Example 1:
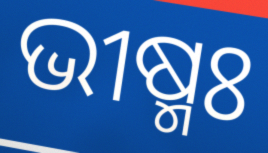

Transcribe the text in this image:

ଭୀଷ୍ମଃ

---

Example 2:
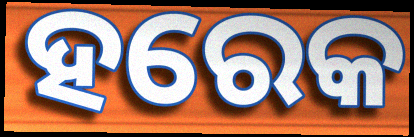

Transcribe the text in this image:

ହରେକ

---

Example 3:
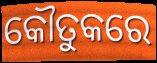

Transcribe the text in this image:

କୌତୁକରେ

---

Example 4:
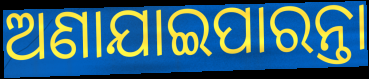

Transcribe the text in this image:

ଅଣାଯାଇପାରନ୍ତା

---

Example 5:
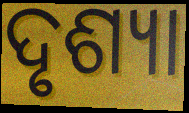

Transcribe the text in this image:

ଦୃଶ୍ୟା